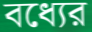
বধ্যের